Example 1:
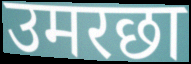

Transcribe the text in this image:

उमरछा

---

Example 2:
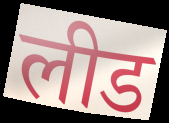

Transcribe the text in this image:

लीड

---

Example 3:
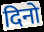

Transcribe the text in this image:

दिनो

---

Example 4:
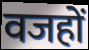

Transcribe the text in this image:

वजहों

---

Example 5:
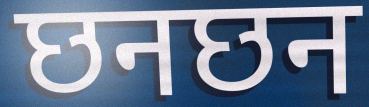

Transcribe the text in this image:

छनछन